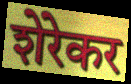
शेरेकर